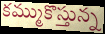
కమ్ముకొస్తున్న